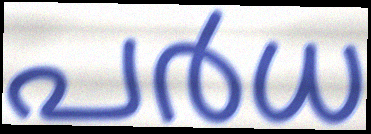
പർധ